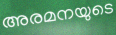
അരമനയുടെ